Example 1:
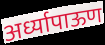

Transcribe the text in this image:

अर्ध्यापाऊण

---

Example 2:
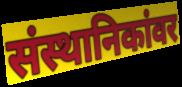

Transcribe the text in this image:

संस्थानिकांवर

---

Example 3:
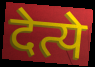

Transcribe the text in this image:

देत्ये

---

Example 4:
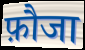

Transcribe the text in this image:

फ़ौजा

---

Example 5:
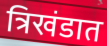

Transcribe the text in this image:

त्रिखंडात